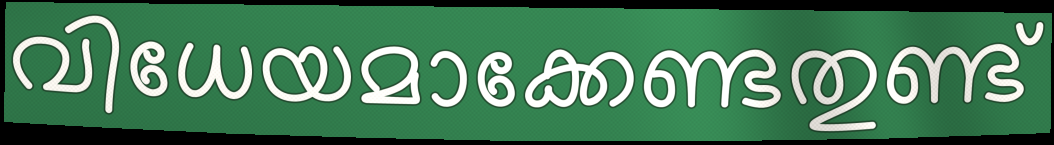
വിധേയമാക്കേണ്ടതുണ്ട്